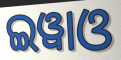
ଇୱାଓ